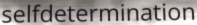
selfdetermination